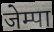
जेम्पा